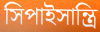
সিপাইসান্ত্রি